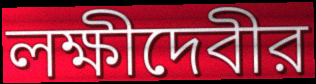
লক্ষীদেবীর